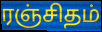
ரஞ்சிதம்